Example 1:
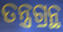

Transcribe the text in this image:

ତନ୍ତ୍ରଗ୍ରନ୍ଥ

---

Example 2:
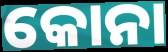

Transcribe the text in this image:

କୋନା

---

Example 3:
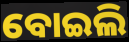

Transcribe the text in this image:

ବୋଇଲି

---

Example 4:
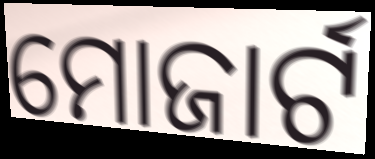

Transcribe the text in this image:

ମୋଜାର୍ଟ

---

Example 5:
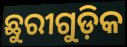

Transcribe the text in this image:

ଛୁରୀଗୁଡ଼ିକ